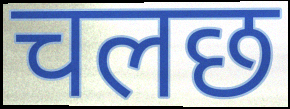
चलछ